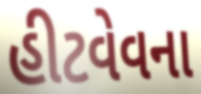
હીટવેવના